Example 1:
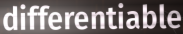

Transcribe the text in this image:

differentiable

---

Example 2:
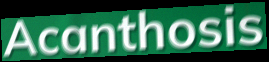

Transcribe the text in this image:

Acanthosis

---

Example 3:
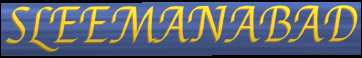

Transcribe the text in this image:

SLEEMANABAD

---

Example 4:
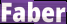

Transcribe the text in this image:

Faber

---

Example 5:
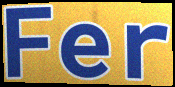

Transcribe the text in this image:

Fer